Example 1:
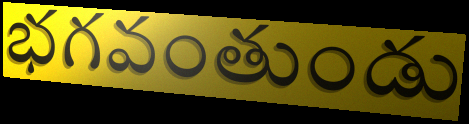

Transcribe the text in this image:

భగవంతుండు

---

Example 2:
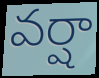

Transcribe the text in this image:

వర్షా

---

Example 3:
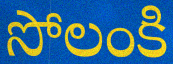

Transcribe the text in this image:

సోలంకి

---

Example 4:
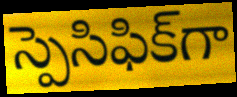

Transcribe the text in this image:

స్పెసిఫిక్‌గా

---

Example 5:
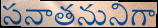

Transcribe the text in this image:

సనాతనునిగా